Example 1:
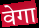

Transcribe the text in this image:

वेगा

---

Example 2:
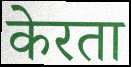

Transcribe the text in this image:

केरता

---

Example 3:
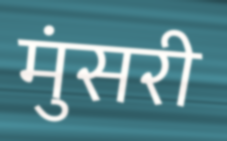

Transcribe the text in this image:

मुंसरी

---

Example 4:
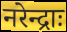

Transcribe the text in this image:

नरेन्द्राः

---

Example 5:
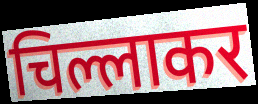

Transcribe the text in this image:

चिल्लाकर